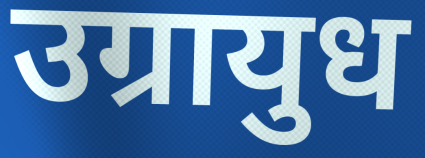
उग्रायुध